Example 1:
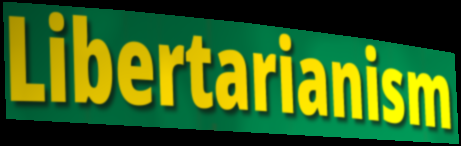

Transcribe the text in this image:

Libertarianism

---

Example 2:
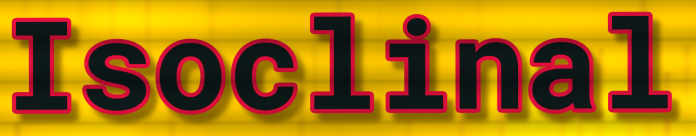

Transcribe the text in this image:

Isoclinal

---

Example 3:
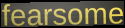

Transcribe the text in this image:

fearsome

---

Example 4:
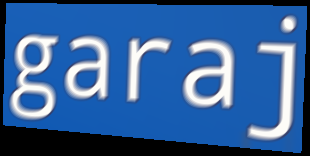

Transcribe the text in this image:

garaj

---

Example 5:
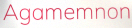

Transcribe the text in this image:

Agamemnon